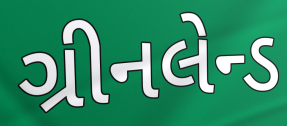
ગ્રીનલેન્ડ